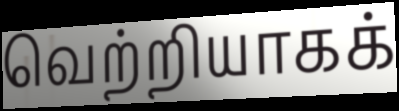
வெற்றியாகக்